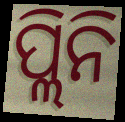
ପ୍ଲିନି